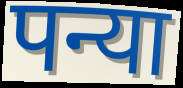
पन्या